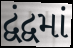
દ્વંદ્વમાં